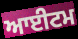
ਆਈਟਮ